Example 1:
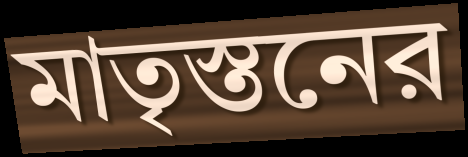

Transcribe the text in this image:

মাতৃস্তনের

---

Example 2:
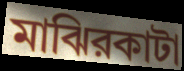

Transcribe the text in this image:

মাঝিরকাটা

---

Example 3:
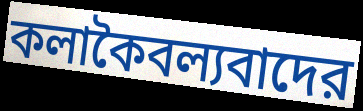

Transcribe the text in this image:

কলাকৈবল্যবাদের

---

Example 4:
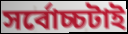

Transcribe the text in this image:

সর্বোচ্চটাই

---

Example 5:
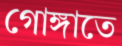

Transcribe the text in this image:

গোঙ্গাতে